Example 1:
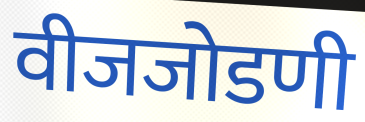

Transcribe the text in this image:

वीजजोडणी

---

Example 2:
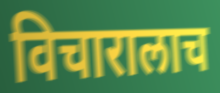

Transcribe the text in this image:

विचारालाच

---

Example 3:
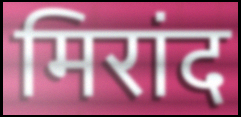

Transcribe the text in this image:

मिरांद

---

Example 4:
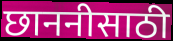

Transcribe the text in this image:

छाननीसाठी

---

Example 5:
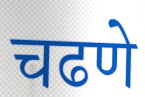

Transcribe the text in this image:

चढणे